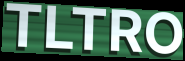
TLTRO